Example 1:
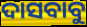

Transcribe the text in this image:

ଦାସବାବୁ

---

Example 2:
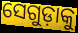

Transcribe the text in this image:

ସେଗୁଡ଼ାକୁ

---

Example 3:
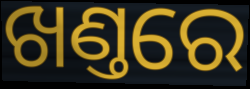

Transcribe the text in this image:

ଖଣ୍ତରେ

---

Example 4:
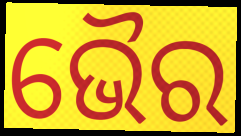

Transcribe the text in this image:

ଭୈର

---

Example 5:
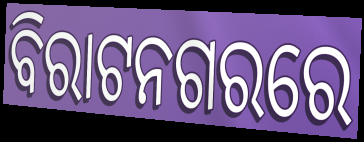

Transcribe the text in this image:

ବିରାଟନଗରରେ